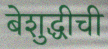
बेशुद्धीची